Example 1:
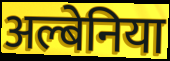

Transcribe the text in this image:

अल्बेनिया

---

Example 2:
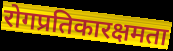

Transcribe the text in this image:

रोगप्रतिकारक्षमता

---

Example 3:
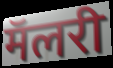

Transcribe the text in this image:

मॅलरी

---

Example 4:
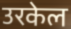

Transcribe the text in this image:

उरकेल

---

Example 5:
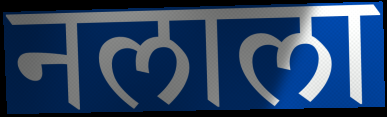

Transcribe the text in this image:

नलाला